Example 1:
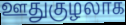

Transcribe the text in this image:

ஊதுகுழலாக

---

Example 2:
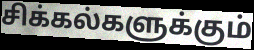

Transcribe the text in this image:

சிக்கல்களுக்கும்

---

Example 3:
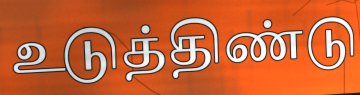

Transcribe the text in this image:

உடுத்திண்டு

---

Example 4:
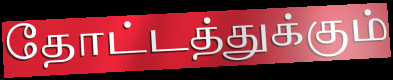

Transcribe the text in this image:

தோட்டத்துக்கும்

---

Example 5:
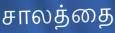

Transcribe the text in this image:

சாலத்தை